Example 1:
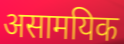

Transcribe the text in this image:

असामयिक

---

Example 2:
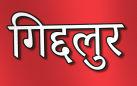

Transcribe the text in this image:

गिद्दलुर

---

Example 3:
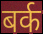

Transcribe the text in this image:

बर्क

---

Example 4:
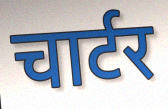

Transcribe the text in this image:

चार्टर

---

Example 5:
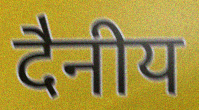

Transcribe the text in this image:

दैनीय